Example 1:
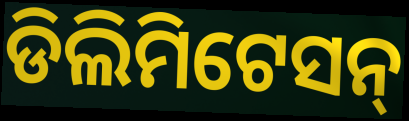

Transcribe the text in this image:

ଡିଲିମିଟେସନ୍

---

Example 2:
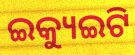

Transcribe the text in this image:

ଇକ୍ୟୁଇଟି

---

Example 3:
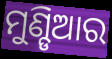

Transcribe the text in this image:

ମୁଣ୍ଡିଆର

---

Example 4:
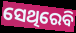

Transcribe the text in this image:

ସେଥିରେବି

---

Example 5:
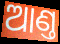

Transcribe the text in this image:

ଆଣ୍ତ